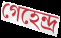
গেহেন্দ্র